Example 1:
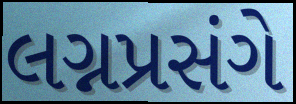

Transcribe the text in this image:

લગ્નપ્રસંગે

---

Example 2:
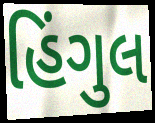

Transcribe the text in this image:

હિંગુલ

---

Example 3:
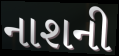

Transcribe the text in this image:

નાશની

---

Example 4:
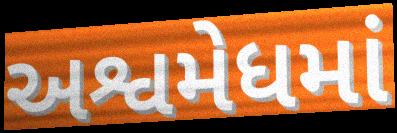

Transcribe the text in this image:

અશ્વમેધમાં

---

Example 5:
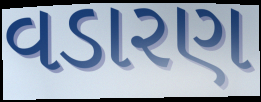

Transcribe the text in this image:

વડારણ